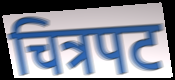
चित्रपट